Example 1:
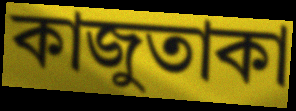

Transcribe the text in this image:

কাজুতাকা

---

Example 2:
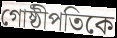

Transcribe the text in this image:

গোষ্ঠীপতিকে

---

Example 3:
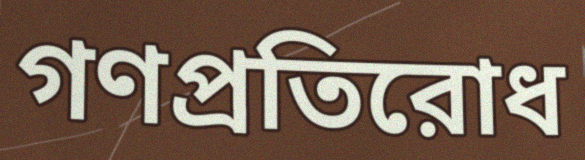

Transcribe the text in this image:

গণপ্রতিরোধ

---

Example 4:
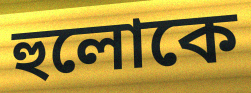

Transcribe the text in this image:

হুলোকে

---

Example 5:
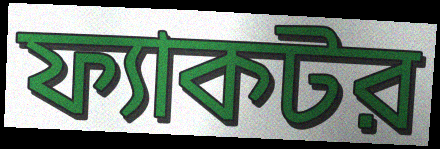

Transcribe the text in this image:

ফ্যাকটর